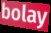
bolay